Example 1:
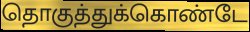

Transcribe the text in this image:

தொகுத்துக்கொண்டே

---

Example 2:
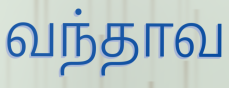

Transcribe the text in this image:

வந்தாவ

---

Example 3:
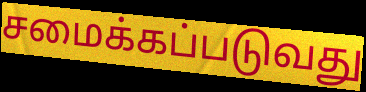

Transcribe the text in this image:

சமைக்கப்படுவது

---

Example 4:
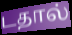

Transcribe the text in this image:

டதால்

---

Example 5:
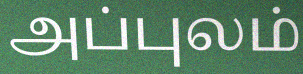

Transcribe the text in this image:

அப்புலம்